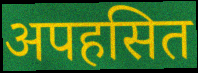
अपहसित